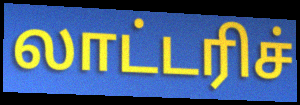
லாட்டரிச்